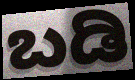
ಬಡಿ